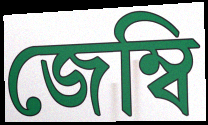
জেম্বি